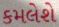
કમલેશે